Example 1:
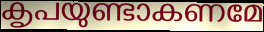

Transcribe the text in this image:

കൃപയുണ്ടാകണമേ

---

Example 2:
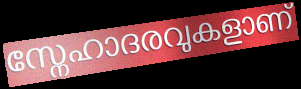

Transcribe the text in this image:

സ്നേഹാദരവുകളാണ്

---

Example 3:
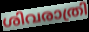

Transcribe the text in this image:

ശിവരാത്രി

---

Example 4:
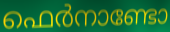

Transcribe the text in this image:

ഫെർനാണ്ടോ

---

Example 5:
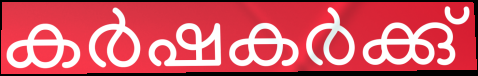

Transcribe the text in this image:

കർഷകർക്കു്